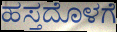
ಹಸ್ತದೊಳಗೆ